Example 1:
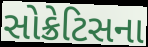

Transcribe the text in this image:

સોક્રેટિસના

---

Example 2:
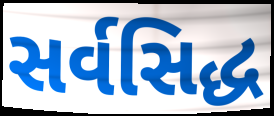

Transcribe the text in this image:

સર્વસિદ્ધ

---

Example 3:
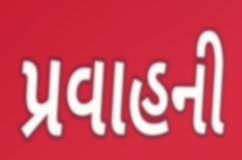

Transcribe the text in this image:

પ્રવાહની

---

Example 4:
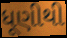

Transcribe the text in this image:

ધૂણીથી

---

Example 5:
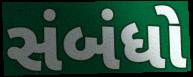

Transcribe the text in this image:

સંબંધો